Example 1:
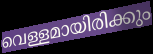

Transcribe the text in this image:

വെള്ളമായിരിക്കും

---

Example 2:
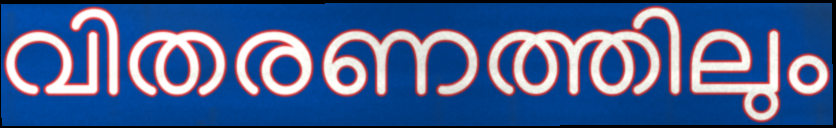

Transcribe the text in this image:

വിതരണത്തിലും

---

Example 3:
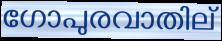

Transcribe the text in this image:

ഗോപുരവാതില്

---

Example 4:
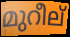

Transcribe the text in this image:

മുറീല്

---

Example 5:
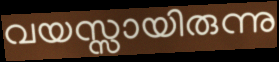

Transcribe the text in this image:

വയസ്സായിരുന്നു